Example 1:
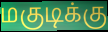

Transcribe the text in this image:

மகுடிக்கு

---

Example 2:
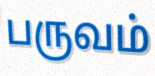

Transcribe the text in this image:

பருவம்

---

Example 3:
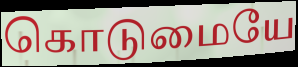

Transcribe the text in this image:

கொடுமையே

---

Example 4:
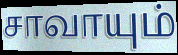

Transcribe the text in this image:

சாவாயும்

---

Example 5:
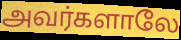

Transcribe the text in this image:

அவர்களாலே